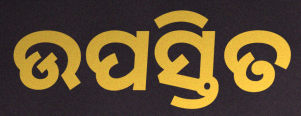
ଉପସ୍ତିତ